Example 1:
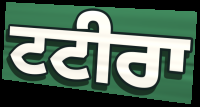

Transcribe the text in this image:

ਟਟੀਰਾ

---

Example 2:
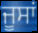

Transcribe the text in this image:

ਜੂਸਾਂ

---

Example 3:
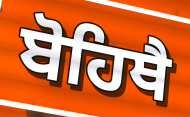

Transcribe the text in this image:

ਬੋਹਿਥੈ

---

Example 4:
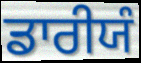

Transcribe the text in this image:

ਡਾਰੀਯੰ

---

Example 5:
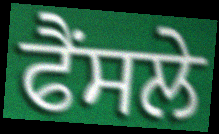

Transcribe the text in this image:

ਫੈਂਸਲੇ